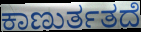
ಕಾಣುರ್ತತದೆ